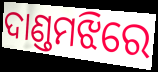
ଦାଣ୍ଡମଝିରେ